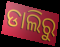
ଡାଲିରୁ